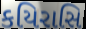
કયિરાસિ